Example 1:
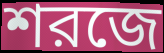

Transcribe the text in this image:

শরজে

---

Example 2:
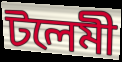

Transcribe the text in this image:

টলেমী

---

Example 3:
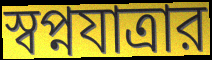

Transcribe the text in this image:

স্বপ্নযাত্রার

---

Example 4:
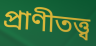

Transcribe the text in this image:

প্রাণীতত্ত্ব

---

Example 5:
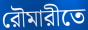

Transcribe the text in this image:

রৌমারীতে